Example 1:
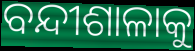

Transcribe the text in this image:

ବନ୍ଦୀଶାଳାକୁ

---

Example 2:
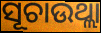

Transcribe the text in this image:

ସୂଚାଉଥ୍ଲା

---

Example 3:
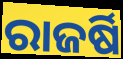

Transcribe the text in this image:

ରାଜର୍ଷି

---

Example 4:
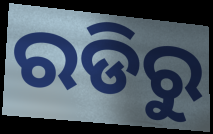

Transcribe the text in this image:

ରଡିରୁ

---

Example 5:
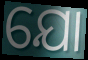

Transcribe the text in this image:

ଯୋ